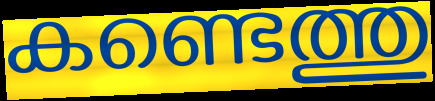
കണ്ടെത്തു